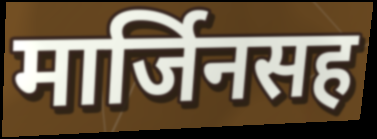
मार्जिनसह